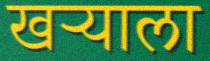
खर्‍याला